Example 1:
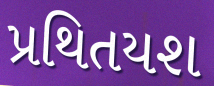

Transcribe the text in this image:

પ્રથિતયશ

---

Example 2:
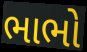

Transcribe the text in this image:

ભાભો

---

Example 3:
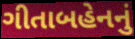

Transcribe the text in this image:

ગીતાબહેનનું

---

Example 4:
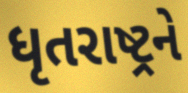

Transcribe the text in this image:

ધૃતરાષ્ટ્રને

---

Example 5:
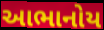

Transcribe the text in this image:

આભાનોય